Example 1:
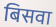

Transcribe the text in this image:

बिसवा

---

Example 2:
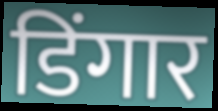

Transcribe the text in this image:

डिंगार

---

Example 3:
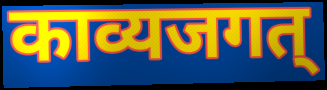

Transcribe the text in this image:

काव्यजगत्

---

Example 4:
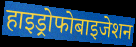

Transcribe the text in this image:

हाइड्रोफोबाइजेशन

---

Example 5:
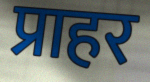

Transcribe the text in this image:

प्राहर